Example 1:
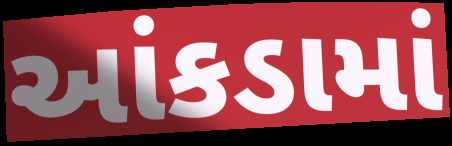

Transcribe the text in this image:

આંકડામાં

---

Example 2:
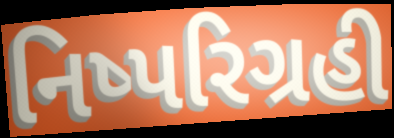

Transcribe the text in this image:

નિષ્પરિગ્રહી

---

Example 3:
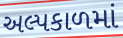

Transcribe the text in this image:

અલ્પકાળમાં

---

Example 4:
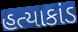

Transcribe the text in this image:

હત્યાકાંડ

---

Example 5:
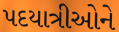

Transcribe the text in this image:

પદયાત્રીઓને